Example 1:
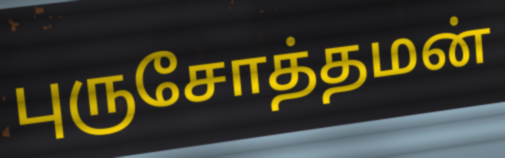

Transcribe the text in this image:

புருசோத்தமன்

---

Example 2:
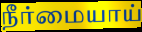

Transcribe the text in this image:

நீர்மையாய்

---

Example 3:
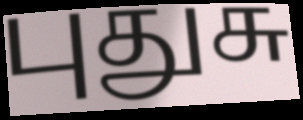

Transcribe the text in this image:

புதுசு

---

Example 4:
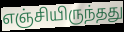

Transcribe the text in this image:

எஞ்சியிருந்தது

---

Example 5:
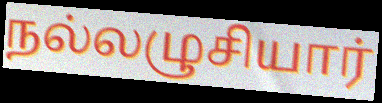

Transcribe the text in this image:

நல்லழுசியார்